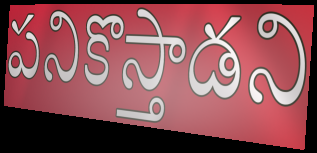
పనికొస్తాడని